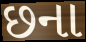
છના